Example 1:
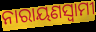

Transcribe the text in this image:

ନାରାୟଣସ୍ଵାମୀ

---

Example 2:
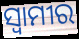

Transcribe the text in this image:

ସ୍ଵାମୀର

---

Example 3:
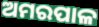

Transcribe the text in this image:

ଅମରପାଳ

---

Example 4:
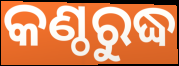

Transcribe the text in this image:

କଣ୍ଠରୁଦ୍ଧ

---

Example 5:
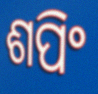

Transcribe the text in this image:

ଶପିଂ